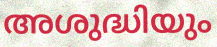
അശുദ്ധിയും